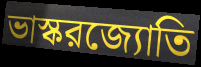
ভাস্করজ্যোতি